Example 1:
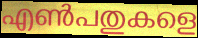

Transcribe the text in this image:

എൺപതുകളെ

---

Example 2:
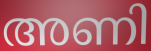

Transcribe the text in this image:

അണി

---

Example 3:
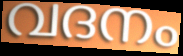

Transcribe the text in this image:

വദനം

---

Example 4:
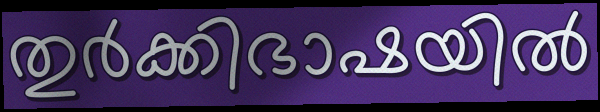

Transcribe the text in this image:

തുർക്കിഭാഷയിൽ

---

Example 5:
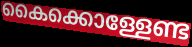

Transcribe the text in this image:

കൈക്കൊള്ളേണ്ട